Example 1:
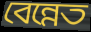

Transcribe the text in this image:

বেন্নেত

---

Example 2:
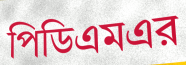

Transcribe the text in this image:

পিডিএমএর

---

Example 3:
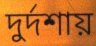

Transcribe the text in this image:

দুর্দশায়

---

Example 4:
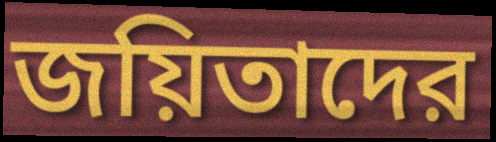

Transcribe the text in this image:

জয়িতাদের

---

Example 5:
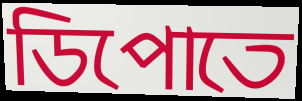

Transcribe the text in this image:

ডিপোতে